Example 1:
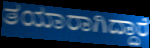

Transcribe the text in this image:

ತಯಾರಾಗಿದ್ದಾರೆ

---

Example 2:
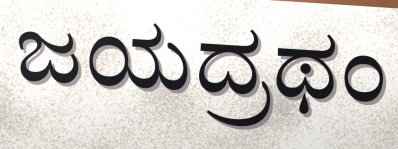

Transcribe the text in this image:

ಜಯದ್ರಥಂ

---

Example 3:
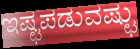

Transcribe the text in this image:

ಇಷ್ಟಪಡುವಷ್ಟು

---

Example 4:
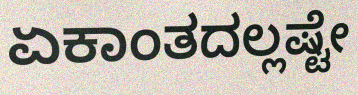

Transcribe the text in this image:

ಏಕಾಂತದಲ್ಲಷ್ಟೇ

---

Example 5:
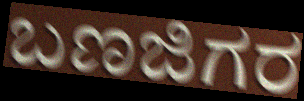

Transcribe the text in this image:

ಬಣಜಿಗರ